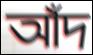
আঁদ